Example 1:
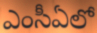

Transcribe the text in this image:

ఎంసీఏలో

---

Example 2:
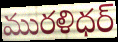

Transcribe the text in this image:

మురళిధర్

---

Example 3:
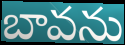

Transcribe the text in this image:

బావను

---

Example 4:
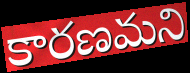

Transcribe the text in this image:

కారణమని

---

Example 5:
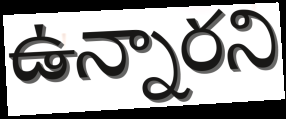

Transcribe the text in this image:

ఉన్నారని